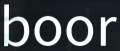
boor